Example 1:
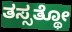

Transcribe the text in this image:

ತಸ್ಸತ್ಥೋ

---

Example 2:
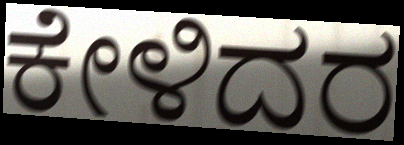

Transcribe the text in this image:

ಕೇಳಿದರ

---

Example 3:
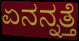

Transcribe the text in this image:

ಏನನ್ನತ್ತೆ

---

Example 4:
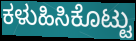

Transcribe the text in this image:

ಕಳುಹಿಸಿಕೊಟ್ಟು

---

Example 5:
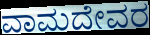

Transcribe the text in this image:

ವಾಮದೇವರ